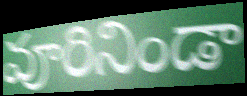
వూరినిండా